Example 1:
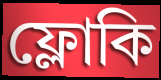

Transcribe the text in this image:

ফ্লোকি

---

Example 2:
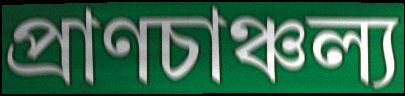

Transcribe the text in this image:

প্রাণচাঞ্চল্য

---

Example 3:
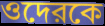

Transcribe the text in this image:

ওদেরকে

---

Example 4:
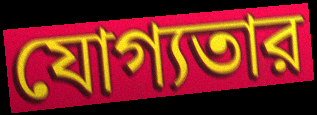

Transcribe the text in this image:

যোগ্যতার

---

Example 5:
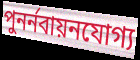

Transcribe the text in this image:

পুনর্নবায়নযোগ্য